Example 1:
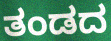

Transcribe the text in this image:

ತಂಡದ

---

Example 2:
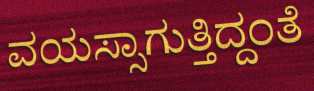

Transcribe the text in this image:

ವಯಸ್ಸಾಗುತ್ತಿದ್ದಂತೆ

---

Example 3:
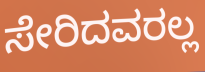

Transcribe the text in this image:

ಸೇರಿದವರಲ್ಲ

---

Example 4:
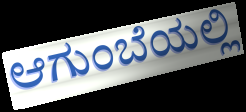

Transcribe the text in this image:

ಆಗುಂಬೆಯಲ್ಲಿ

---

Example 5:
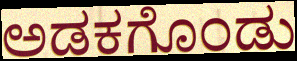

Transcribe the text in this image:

ಅಡಕಗೊಂಡು